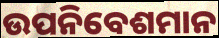
ଉପନିବେଶମାନ